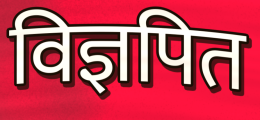
विज्ञपित